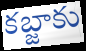
కబ్జాకు